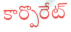
కార్పొరేట్